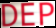
DEP